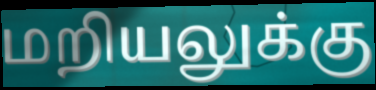
மறியலுக்கு